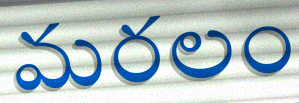
మరలం